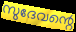
സുദേവന്റെ